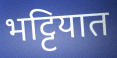
भट्टियात